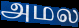
அமல